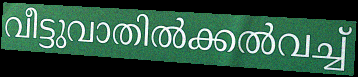
വീട്ടുവാതിൽക്കൽവച്ച്